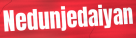
Nedunjedaiyan